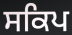
ਸਕਿਪ